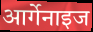
आर्गेनाइज